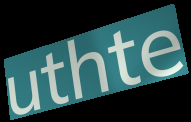
uthte